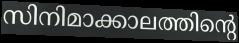
സിനിമാക്കാലത്തിന്റെ